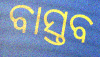
ବାସ୍ତବ